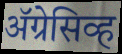
ॲग्रेसिव्ह